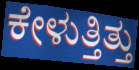
ಕೇಳುತ್ತಿತ್ತು